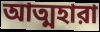
আত্মহারা